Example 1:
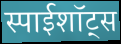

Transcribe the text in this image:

स्पाईशॉट्स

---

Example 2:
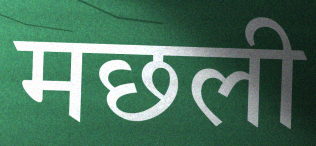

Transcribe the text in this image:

मछली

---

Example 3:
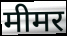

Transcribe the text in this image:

मीमर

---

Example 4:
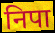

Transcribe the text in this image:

निपा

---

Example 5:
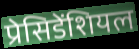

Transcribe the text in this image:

प्रेसिडेंशियल